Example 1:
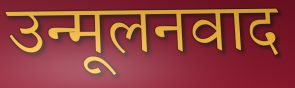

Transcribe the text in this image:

उन्मूलनवाद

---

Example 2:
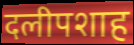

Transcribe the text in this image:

दलीपशाह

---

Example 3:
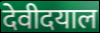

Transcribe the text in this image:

देवीदयाल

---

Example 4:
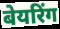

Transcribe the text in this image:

बेयरिंग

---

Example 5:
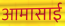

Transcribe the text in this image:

आमासाई